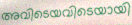
അവിടെയവിടെയായി